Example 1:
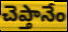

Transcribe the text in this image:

చెప్తానేం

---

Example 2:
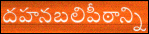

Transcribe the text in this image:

దహనబలిపీఠాన్ని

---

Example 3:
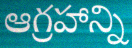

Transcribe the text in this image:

ఆగ్రహాన్ని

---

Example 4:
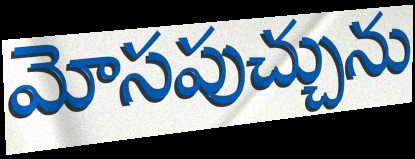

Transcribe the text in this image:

మోసపుచ్చును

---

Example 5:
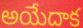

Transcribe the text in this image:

అయేదాక